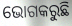
ଭୋଗକରୁଛି